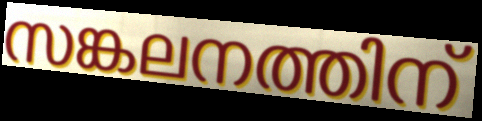
സങ്കലനത്തിന്